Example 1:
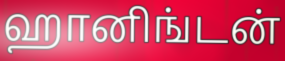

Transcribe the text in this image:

ஹானிங்டன்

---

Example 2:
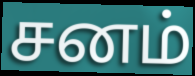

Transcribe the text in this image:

சனம்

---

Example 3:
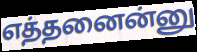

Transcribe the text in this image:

எத்தனைன்னு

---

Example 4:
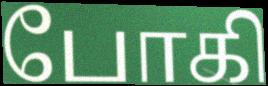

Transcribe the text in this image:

போகி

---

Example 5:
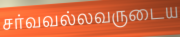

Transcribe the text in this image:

சர்வவல்லவருடைய